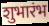
शुभारंभ